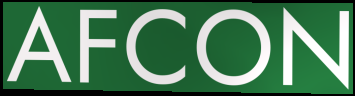
AFCON